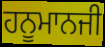
ਹਨੂਮਾਨਜੀ